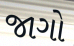
જાગો